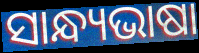
ସାନ୍ଧ୍ୟଭାଷା